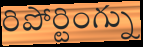
రిపోర్టింగ్ను